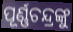
ପୂର୍ଣ୍ଣଚନ୍ଦ୍ରଙ୍କୁ